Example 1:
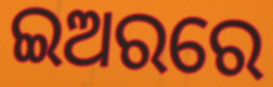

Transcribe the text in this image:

ଇଅରରେ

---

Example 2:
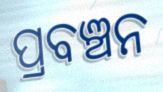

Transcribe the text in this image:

ପ୍ରବଞ୍ଚନ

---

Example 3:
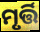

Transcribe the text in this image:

ମୃର୍ତ୍ତି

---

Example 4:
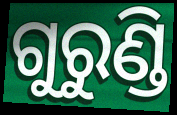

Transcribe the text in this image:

ଗୁରୁଣ୍ଡି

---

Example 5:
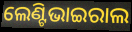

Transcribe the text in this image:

ଲେଣ୍ଟିଭାଇରାଲ